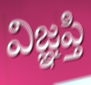
విజ్ఞప్తి